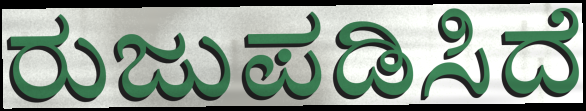
ರುಜುಪಡಿಸಿದೆ